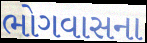
ભોગવાસના